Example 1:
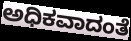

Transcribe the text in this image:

ಅಧಿಕವಾದಂತೆ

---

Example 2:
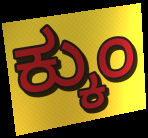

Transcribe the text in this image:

ಕ್ಕುಂ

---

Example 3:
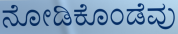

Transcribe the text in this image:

ನೋಡಿಕೊಂಡೆವು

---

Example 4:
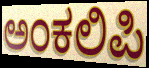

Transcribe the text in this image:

ಅಂಕಲಿಪಿ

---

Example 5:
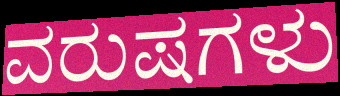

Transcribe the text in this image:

ವರುಷಗಳು